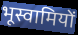
भूस्वामियों